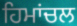
ਹਿਮਾਂਚਲ